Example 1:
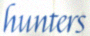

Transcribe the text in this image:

hunters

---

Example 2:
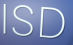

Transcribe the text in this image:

ISD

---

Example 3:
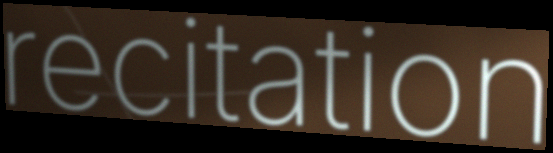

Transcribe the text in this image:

recitation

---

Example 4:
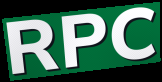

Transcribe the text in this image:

RPC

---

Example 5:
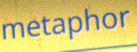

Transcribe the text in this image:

metaphor